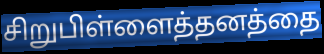
சிறுபிள்ளைத்தனத்தை